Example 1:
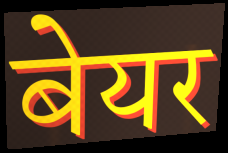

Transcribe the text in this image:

बेयर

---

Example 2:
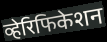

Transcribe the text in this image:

व्हेरिफिकेशन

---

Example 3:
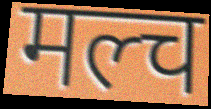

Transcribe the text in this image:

मल्च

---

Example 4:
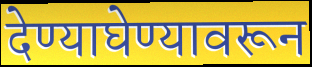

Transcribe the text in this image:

देण्याघेण्यावरून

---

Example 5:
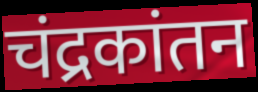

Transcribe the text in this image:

चंद्रकांतन